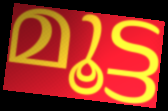
മൂട്ട